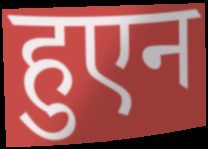
हुएन